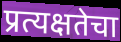
प्रत्यक्षतेचा